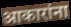
आकारांना